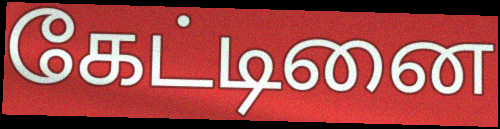
கேட்டினை